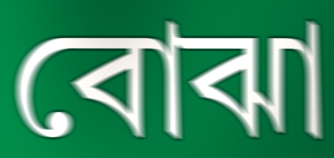
বোঝা